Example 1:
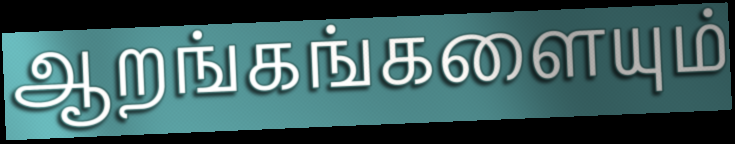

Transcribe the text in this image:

ஆறங்கங்களையும்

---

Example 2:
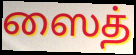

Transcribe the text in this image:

ஸைத்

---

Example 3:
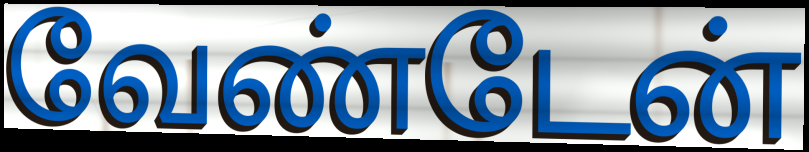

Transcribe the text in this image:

வேண்டேன்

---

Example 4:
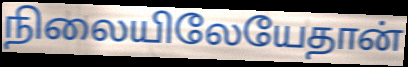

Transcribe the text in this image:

நிலையிலேயேதான்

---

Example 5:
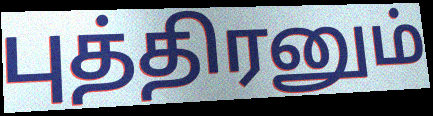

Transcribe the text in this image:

புத்திரனும்